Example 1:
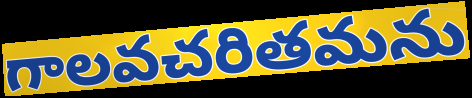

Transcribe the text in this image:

గాలవచరితమను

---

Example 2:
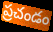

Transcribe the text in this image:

ప్రచండం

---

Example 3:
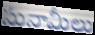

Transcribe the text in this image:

సునామీలు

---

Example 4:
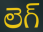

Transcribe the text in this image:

లెగ్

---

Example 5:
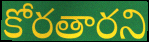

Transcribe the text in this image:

కోరతారని